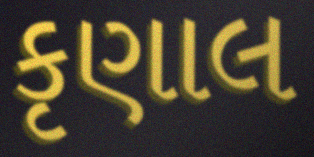
કૃણાલ